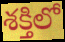
శక్తిలో